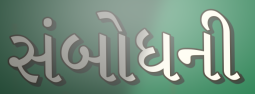
સંબોધની